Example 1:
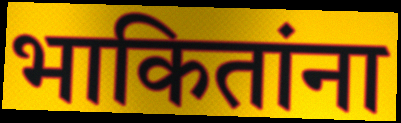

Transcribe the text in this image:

भाकितांना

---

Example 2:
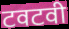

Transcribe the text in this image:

टवटवी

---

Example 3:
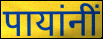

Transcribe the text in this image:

पायांनीं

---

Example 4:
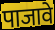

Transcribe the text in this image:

पाजावे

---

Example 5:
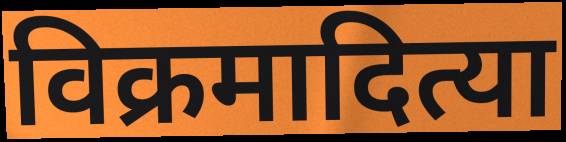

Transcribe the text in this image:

विक्रमादित्या